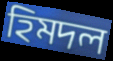
হিমদল